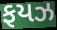
ફયઝ